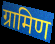
ग्रामिण